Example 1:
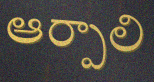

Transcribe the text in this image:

ఆర్పాలి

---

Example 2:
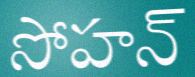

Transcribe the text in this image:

సోహన్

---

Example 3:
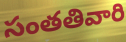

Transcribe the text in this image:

సంతతివారి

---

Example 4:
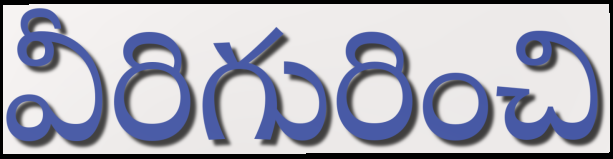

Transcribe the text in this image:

వీరిగురించి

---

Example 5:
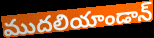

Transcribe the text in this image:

ముదలియాండాన్